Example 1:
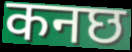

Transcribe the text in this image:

कनछ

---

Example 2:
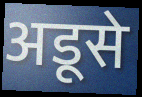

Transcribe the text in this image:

अडूसे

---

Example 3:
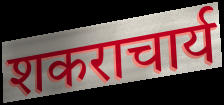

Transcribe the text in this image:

शकराचार्य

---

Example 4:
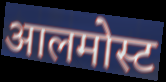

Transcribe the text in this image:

आलमोस्ट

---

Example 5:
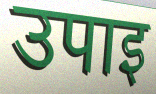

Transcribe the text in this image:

उपाइ